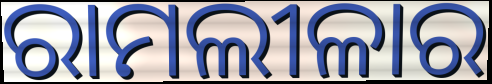
ରାମଲୀଳାର